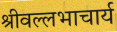
श्रीवल्लभाचार्य